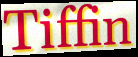
Tiffin